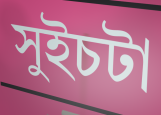
সুইচটা